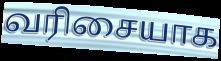
வரிசையாக